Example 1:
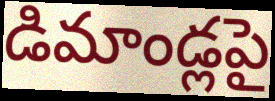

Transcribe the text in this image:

డిమాండ్లపై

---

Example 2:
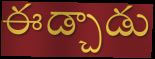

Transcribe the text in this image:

ఈడ్చాడు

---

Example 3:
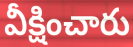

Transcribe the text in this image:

వీక్షించారు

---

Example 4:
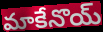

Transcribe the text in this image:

మాకేనొయ్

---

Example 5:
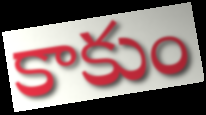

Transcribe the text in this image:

కాకుం